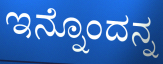
ಇನ್ನೊಂದನ್ನ